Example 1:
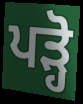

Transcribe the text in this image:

ਪੜ੍ਹੋ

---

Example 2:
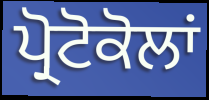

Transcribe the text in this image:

ਪ੍ਰੋਟੋਕੋਲਾਂ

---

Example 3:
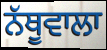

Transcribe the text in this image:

ਨੱਥੂਵਾਲਾ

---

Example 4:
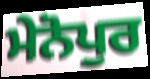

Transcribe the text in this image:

ਮੇਨੋਪੁਰ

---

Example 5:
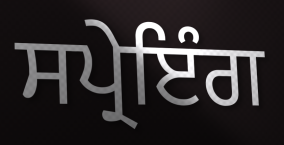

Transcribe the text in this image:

ਸਪ੍ਰੇਇੰਗ